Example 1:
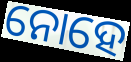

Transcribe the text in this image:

ନୋହେ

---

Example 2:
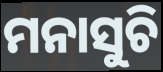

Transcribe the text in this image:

ମନାସୁଚି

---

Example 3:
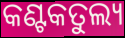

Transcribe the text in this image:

କଣ୍ଟକତୁଲ୍ୟ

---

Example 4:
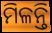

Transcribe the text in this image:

ମିଳନ୍ତି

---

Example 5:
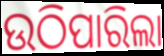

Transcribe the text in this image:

ଉଠିପାରିଲା